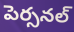
పెర్సనల్